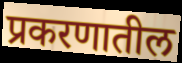
प्रकरणातील